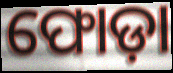
ଫୋଡ଼ା